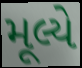
મૂલ્યે